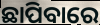
ଛାପିବାରେ